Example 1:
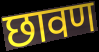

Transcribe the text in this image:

छावण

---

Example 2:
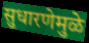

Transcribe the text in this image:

सुधारणेमुळे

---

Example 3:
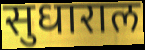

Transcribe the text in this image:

सुधाराल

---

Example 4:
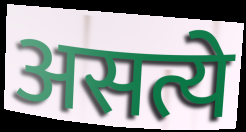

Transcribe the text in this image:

असत्ये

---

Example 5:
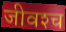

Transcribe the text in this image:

जीवश्च